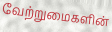
வேற்றுமைகளின்